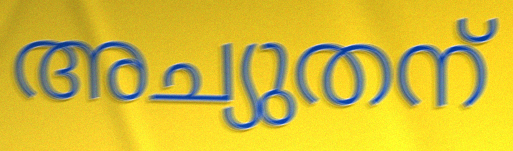
അച്യുതന്